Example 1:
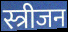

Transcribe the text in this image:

स्त्रीजन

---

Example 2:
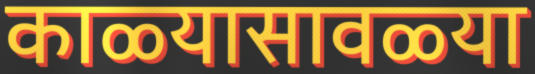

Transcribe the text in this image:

काळ्यासावळ्या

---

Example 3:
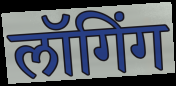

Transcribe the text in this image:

लॉगिंग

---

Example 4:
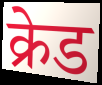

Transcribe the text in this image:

क्रेड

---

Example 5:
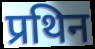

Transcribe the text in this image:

प्रथिन